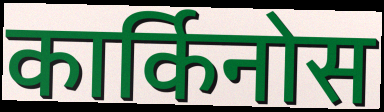
कार्किनोस